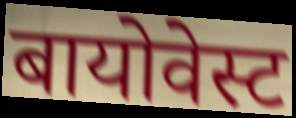
बायोवेस्ट